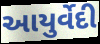
આયુર્વેદી